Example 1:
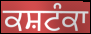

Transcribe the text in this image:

ਕਸ਼ਟੰਕਾ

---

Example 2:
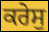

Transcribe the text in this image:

ਕਰੇਸੁ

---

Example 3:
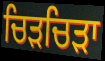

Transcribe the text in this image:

ਚਿੜਚਿੜਾ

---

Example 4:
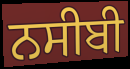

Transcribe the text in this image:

ਨਸੀਬੀ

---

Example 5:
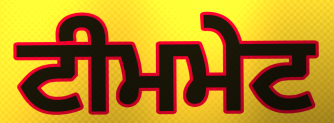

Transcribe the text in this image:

ਟੀਮਮੇਟ